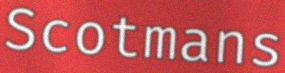
Scotmans